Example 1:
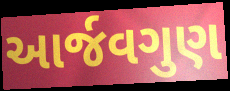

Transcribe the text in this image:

આર્જવગુણ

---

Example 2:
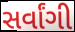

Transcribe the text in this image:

સર્વાંગી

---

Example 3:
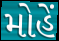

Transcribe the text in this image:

મોહેં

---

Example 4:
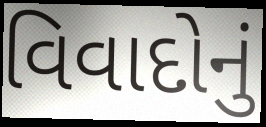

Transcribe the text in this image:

વિવાદોનું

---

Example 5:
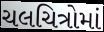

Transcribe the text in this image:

ચલચિત્રોમાં